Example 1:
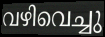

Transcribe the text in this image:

വഴിവെച്ചു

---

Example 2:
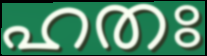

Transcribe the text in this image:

ഹതഃ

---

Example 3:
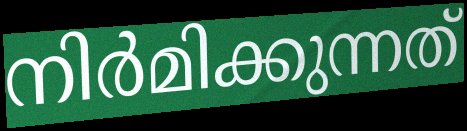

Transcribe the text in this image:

നിർമിക്കുന്നത്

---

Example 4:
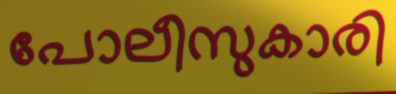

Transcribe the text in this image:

പോലീസുകാരി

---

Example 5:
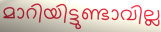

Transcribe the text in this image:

മാറിയിട്ടുണ്ടാവില്ല